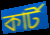
কার্ট